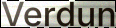
Verdun